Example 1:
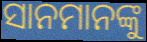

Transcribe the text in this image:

ସାନମାନଙ୍କୁ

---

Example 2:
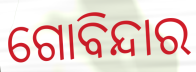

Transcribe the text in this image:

ଗୋବିନ୍ଦାର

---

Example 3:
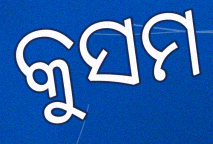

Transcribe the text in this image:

କୁସମ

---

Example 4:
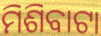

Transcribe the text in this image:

ମିଶିବାଟା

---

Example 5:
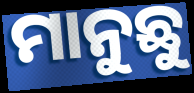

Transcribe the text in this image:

ମାନୁଛୁ